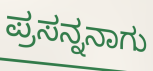
ಪ್ರಸನ್ನನಾಗು